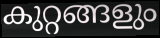
കുറ്റങ്ങളും